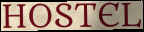
HOSTEL